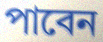
পাবেন